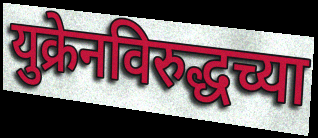
युक्रेनविरुद्धच्या